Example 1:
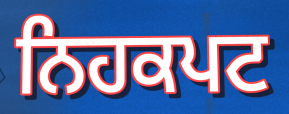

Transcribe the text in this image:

ਨਿਹਕਪਟ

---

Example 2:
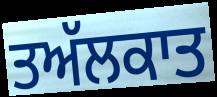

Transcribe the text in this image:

ਤਅੱਲਕਾਤ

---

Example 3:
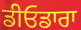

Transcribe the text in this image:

ਡੀਓਡਾਰਾ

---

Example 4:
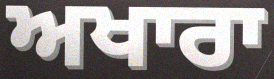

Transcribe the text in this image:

ਅਖਾਰਾ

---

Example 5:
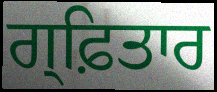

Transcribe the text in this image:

ਗ੍ਫ਼ਿਤਾਰ